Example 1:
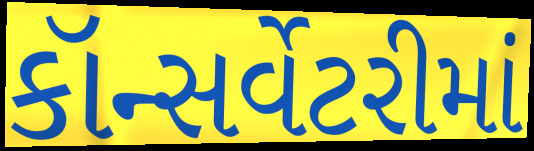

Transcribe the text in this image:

કૉન્સર્વેટરીમાં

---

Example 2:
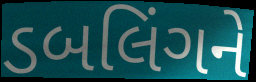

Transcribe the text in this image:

ડબલિંગને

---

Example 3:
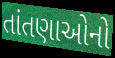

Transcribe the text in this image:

તાંતણાઓનો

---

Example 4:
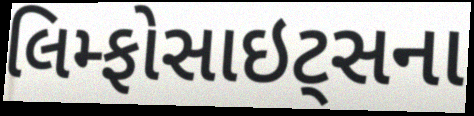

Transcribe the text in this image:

લિમ્ફોસાઇટ્સના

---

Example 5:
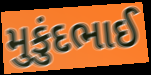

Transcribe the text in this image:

મુકુંદભાઈ